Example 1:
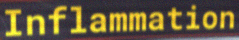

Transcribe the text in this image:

Inflammation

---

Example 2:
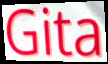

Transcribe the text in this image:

Gita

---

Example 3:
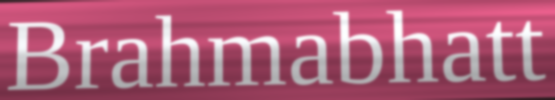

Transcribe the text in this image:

Brahmabhatt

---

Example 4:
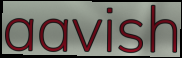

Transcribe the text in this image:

aavish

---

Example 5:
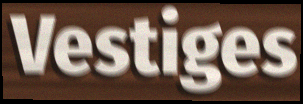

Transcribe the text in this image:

Vestiges